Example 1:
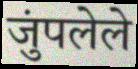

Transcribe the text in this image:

जुंपलेले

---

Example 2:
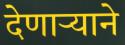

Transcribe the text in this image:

देणार्‍याने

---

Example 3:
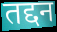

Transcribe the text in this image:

तद्दन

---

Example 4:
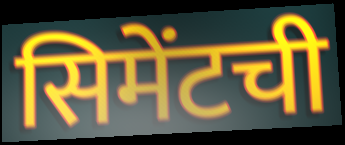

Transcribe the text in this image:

सिमेंटची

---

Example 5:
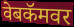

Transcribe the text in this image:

वेबकॅमवर